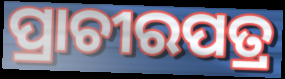
ପ୍ରାଚୀରପତ୍ର